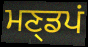
ਮਣ੍ਡਪਂ